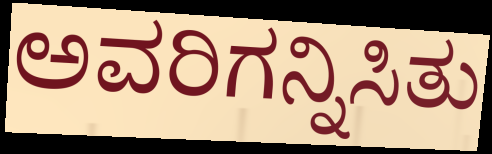
ಅವರಿಗನ್ನಿಸಿತು